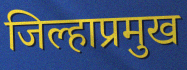
जिल्हाप्रमुख